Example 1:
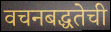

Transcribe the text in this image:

वचनबद्धतेची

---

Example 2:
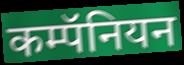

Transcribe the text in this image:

कम्पॅनियन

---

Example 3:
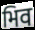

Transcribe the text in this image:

भिव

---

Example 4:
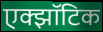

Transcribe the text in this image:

एक्झॉटिक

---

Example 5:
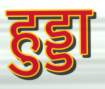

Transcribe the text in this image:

हुड्डा